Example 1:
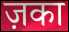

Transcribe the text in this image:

ज़का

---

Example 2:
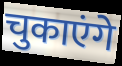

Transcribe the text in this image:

चुकाएंगे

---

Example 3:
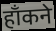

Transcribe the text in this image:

हाँकने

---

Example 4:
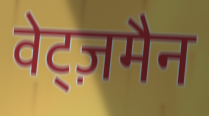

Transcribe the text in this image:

वेट्ज़मैन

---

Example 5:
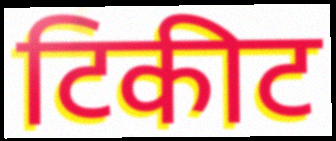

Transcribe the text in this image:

टिकीट